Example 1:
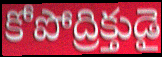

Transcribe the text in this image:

కోపోద్రిక్తుడై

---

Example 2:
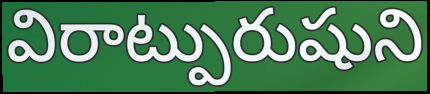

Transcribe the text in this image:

విరాట్పురుషుని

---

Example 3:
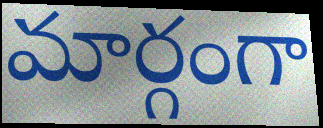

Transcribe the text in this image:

మార్గంగా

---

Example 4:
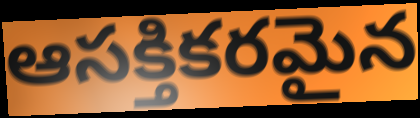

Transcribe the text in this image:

ఆసక్తికరమైన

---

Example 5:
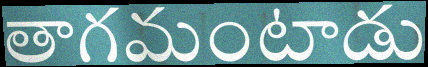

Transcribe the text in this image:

తాగమంటాడు